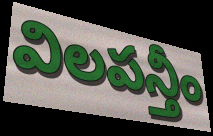
విలపన్తీం